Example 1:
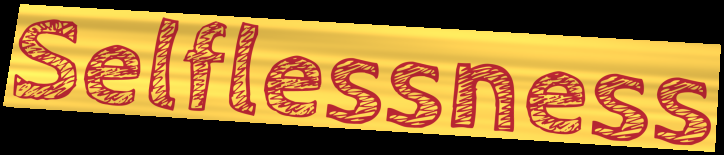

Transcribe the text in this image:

Selflessness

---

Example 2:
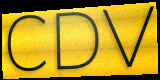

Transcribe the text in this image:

CDV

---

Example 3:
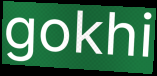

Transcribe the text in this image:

gokhi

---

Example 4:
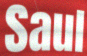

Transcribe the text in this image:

Saul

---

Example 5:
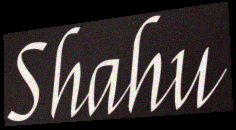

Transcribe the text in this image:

Shahu